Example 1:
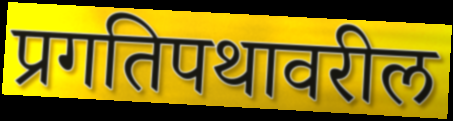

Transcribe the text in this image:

प्रगतिपथावरील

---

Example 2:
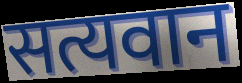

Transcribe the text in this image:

सत्यवान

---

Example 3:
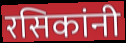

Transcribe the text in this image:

रसिकांनी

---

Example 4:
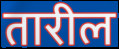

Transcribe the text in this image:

तारील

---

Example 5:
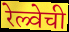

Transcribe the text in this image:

रेल्वेची